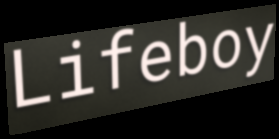
Lifeboy